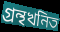
গ্ৰন্থখনিত